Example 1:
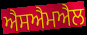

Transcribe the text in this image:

ਐਸਐਮਐਲ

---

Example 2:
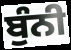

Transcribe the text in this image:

ਬੁੰਨੀ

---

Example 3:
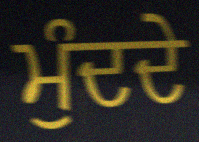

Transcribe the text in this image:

ਮੁੰਦਦੇ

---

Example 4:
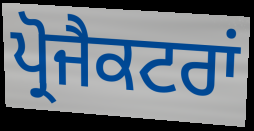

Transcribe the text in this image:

ਪ੍ਰੋਜੈਕਟਰਾਂ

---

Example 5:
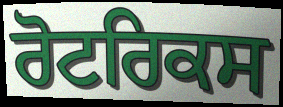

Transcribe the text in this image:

ਰੋਟਰਿਕਸ